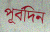
পূর্বদিন